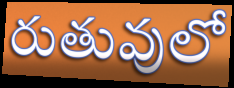
రుతువులో